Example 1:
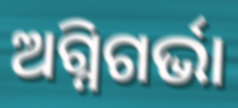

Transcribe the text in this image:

ଅଗ୍ନିଗର୍ଭା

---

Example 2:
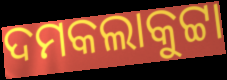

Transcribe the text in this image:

ଦମକଲାକୁଟ୍ଟା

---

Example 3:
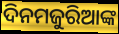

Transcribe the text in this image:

ଦିନମଜୁରିଆଙ୍କ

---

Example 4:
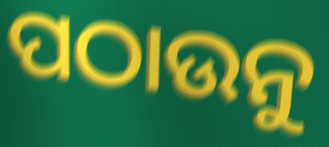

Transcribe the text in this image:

ପଠାଉନୁ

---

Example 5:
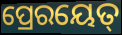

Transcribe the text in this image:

ପ୍ରେରୟେତ୍